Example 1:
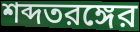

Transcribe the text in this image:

শব্দতরঙ্গের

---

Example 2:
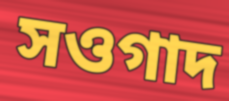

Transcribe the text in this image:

সওগাদ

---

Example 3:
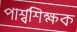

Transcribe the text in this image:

পার্শ্বশিক্ষক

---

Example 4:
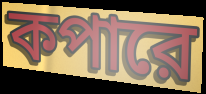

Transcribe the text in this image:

কপারে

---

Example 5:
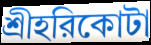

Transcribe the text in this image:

শ্রীহরিকোটা